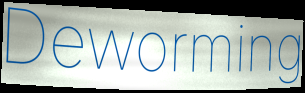
Deworming